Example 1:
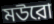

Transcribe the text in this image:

মউরো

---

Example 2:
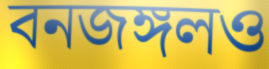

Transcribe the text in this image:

বনজঙ্গলও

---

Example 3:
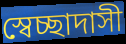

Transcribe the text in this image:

স্বেচ্ছাদাসী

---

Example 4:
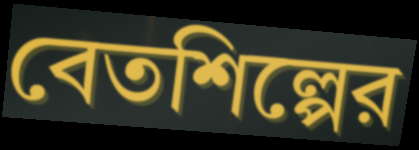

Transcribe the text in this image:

বেতশিল্পের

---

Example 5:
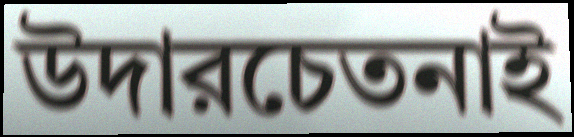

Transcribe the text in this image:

উদারচেতনাই